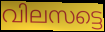
വിലസട്ടെ